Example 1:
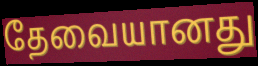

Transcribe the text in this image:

தேவையானது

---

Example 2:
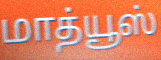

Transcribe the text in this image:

மாத்யூஸ்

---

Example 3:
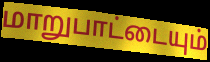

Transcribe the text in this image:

மாறுபாட்டையும்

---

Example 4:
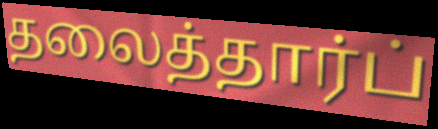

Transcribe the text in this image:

தலைத்தார்ப்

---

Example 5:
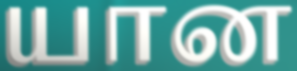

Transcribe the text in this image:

யான